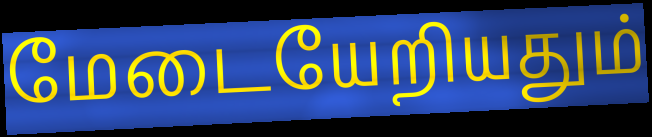
மேடையேறியதும்